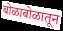
बोळाबोळातून